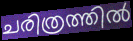
ചരിത്രത്തിൽ